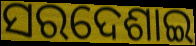
ସରଦେଶାଇ